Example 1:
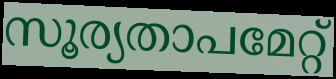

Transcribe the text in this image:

സൂര്യതാപമേറ്റ്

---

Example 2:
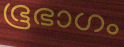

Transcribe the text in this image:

ഭൂഭാഗം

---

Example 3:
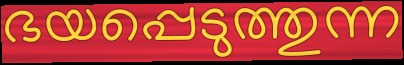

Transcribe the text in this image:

ഭയപ്പെടുത്തുന്ന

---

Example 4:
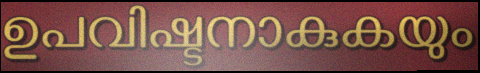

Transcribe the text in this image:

ഉപവിഷ്ടനാകുകയും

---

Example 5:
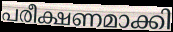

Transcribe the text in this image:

പരീക്ഷണമാക്കി